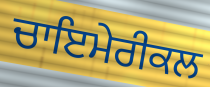
ਚਾਇਮੇਰੀਕਲ